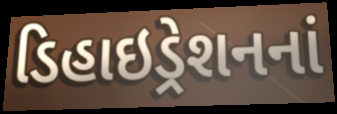
ડિહાઇડ્રેશનનાં